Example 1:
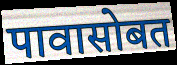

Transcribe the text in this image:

पावासोबत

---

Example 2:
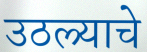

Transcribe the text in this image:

उठल्याचे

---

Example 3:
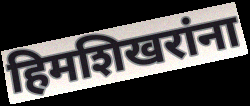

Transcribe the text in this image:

हिमशिखरांना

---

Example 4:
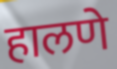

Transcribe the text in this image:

हालणे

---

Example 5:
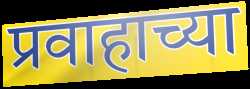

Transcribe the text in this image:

प्रवाहाच्या